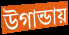
উগান্ডায়